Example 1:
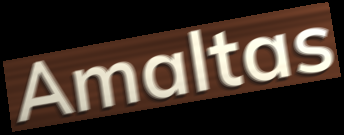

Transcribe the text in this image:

Amaltas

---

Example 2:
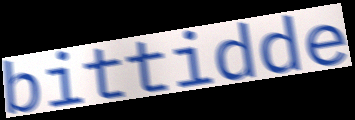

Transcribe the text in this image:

bittidde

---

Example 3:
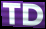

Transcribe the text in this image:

TD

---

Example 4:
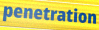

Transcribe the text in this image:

penetration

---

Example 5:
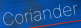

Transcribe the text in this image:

Coriander